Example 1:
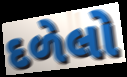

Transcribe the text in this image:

દળેલો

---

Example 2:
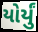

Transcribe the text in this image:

યોર્યું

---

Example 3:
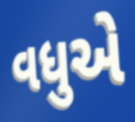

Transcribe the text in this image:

વધુએ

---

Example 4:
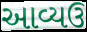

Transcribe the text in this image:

આવ્યઉ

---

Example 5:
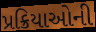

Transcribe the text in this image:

પ્રક્રિયાઓની